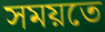
সময়তে